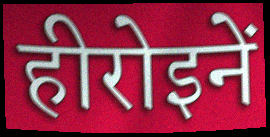
हीरोइनें